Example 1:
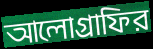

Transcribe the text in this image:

আলোগ্রাফির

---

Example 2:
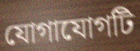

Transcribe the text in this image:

যোগাযোগটি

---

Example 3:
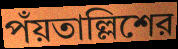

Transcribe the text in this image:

পঁয়তাল্লিশের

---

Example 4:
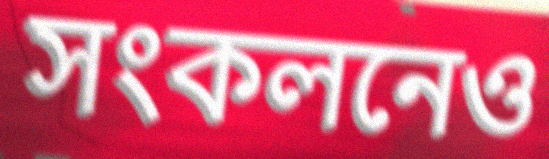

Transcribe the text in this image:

সংকলনেও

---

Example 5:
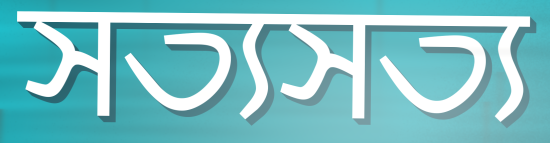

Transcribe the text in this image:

সত্যসত্য